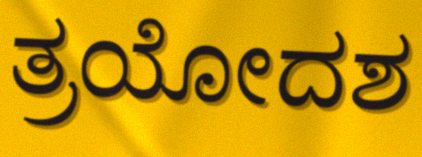
ತ್ರಯೋದಶ